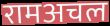
रामअचल